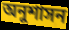
অনুশাসন